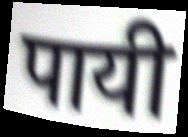
पायी